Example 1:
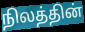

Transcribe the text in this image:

நிலத்தின்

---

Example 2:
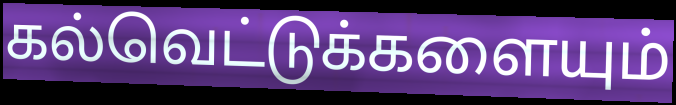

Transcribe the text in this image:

கல்வெட்டுக்களையும்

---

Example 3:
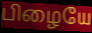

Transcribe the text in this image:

பிழையே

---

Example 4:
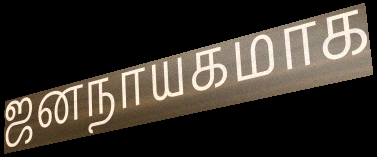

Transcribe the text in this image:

ஜனநாயகமாக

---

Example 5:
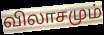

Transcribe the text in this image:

விலாசமும்